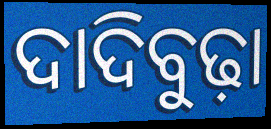
ଦାଦିବୁଢ଼ା